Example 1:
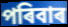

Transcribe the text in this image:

পৰিবাৰ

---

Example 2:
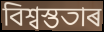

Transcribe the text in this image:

বিশ্বস্ততাৰ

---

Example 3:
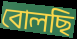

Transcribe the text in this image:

বোলছি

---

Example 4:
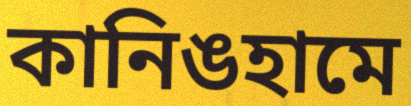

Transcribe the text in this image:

কানিঙহামে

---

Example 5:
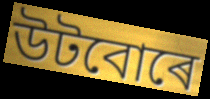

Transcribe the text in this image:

উটবোৰে